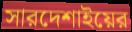
সারদেশাইয়ের